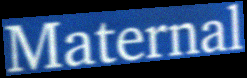
Maternal